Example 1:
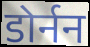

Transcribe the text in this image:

डोर्नन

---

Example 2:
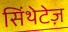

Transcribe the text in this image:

सिंथेटेज़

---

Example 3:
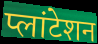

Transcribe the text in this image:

प्लांटेशन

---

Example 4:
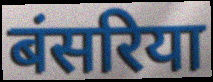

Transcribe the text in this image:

बंसरिया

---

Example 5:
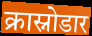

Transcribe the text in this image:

क्रास्नोडार